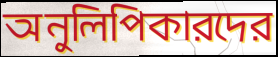
অনুলিপিকারদের